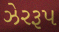
ઝેરરૂપ